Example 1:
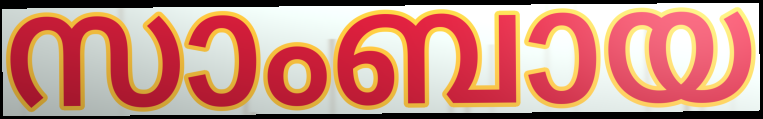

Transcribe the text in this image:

സാംബായ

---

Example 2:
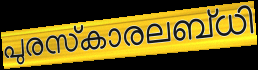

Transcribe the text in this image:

പുരസ്‌കാരലബ്ധി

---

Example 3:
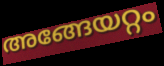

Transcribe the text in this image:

അങ്ങേയറ്റം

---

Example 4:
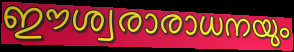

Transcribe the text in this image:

ഈശ്വരാരാധനയും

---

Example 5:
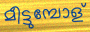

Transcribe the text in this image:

മീട്ടുമ്പോള്